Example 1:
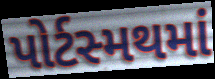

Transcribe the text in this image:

પોર્ટસ્મથમાં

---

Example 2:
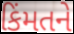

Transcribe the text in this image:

કિંમતને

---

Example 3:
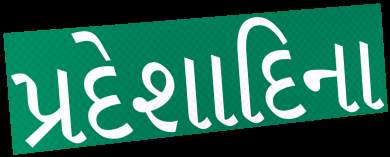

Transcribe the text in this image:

પ્રદેશાદિના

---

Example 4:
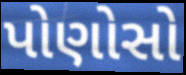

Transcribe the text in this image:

પોણોસો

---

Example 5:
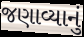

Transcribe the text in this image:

જણાવ્યાનું